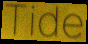
Tide